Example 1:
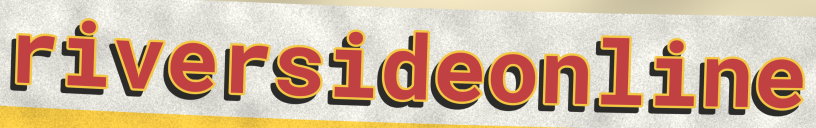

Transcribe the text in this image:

riversideonline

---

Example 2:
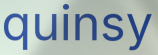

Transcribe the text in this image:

quinsy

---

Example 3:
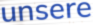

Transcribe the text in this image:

unsere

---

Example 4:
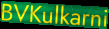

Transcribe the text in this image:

BVKulkarni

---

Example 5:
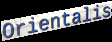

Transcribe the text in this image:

Orientalis